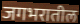
जगभरातील